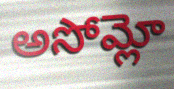
అసోమ్లో